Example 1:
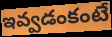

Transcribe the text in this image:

ఇవ్వడంకంటే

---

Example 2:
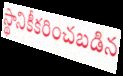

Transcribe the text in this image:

స్థానికీకరించబడిన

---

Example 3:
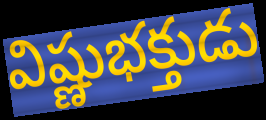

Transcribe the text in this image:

విష్ణుభక్తుడు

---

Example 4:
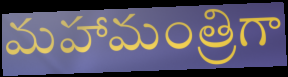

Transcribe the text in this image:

మహామంత్రిగా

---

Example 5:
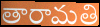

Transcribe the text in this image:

తారామతి